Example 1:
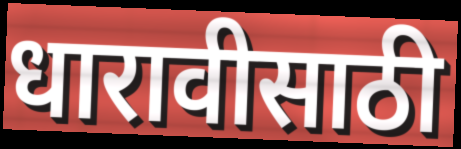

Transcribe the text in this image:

धारावीसाठी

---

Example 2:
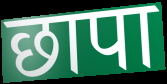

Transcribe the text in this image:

छापा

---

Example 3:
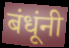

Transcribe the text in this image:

बंधूंनी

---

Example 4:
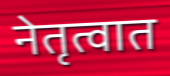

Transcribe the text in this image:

नेतृत्वात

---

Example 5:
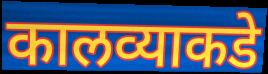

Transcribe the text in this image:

कालव्याकडे